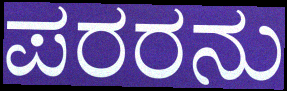
ಪರರನು